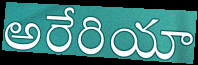
అరేరియా